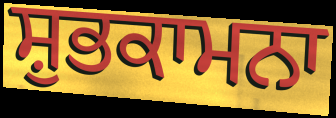
ਸ਼ੁਭਕਾਮਨਾ